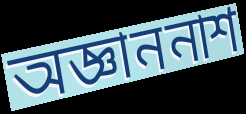
অজ্ঞাননাশ